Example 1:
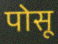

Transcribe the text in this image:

पोसू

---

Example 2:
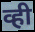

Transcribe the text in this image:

व्ही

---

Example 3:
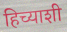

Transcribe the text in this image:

हिच्याशी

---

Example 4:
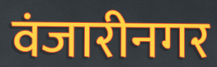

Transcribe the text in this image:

वंजारीनगर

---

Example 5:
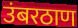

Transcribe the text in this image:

उंबरठाण